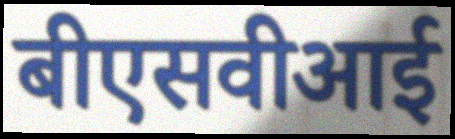
बीएसवीआई